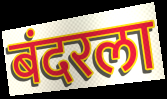
बंदरला